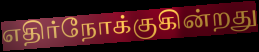
எதிர்நோக்குகின்றது